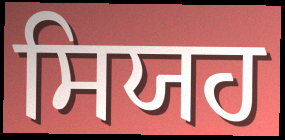
ਸਿਯਹ